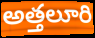
అత్తలూరి